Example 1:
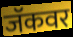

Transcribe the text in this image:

जॅकवर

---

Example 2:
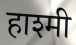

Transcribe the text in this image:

हाश्मी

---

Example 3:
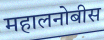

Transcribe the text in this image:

महालनोबीस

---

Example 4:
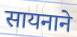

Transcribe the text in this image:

सायनाने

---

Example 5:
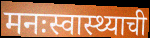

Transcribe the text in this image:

मनःस्वास्थ्याची